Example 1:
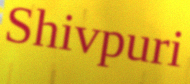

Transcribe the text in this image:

Shivpuri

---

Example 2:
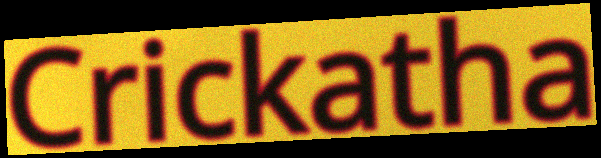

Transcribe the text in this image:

Crickatha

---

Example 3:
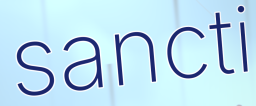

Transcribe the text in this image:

sancti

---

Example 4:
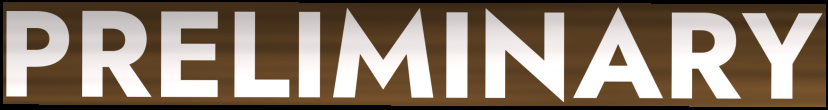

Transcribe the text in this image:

PRELIMINARY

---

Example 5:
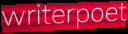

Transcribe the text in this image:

writerpoet